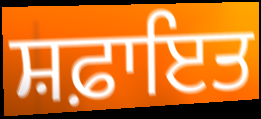
ਸ਼ਫ਼ਾਇਤ